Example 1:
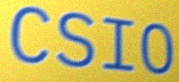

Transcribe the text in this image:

CSIO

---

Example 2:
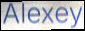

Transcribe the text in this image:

Alexey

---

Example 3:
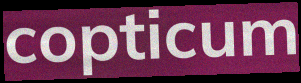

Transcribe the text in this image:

copticum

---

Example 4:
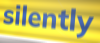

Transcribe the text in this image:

silently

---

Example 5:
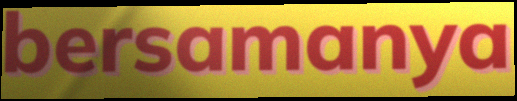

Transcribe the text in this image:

bersamanya